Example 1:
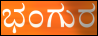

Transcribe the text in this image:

ಭಂಗುರ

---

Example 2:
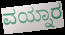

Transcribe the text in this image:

ವಯ್ನಾರ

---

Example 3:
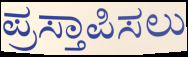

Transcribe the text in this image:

ಪ್ರಸ್ತಾಪಿಸಲು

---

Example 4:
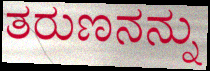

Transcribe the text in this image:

ತರುಣನನ್ನು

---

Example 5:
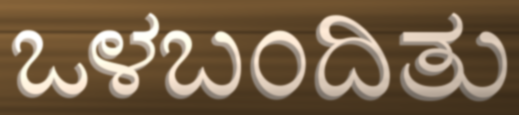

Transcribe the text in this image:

ಒಳಬಂದಿತು